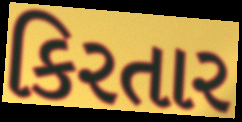
કિરતાર